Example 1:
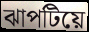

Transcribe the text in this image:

ঝাপটিয়ে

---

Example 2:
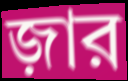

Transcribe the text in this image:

জ়ার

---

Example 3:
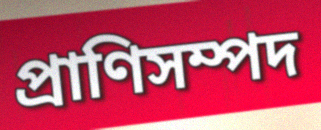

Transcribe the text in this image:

প্রাণিসম্পদ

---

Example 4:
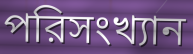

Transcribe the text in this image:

পরিসংখ্যান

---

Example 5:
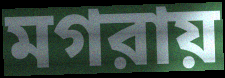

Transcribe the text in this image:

মগরায়